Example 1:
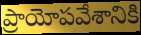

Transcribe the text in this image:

ప్రాయోపవేశానికి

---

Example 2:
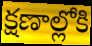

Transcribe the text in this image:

క్షణాల్లోకి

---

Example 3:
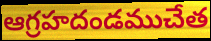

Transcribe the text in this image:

ఆగ్రహదండముచేత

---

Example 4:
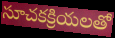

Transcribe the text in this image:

సూచకక్రియలతో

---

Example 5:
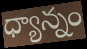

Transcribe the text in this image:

ధ్యాన్నం